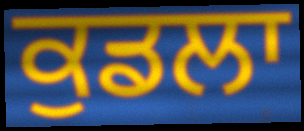
ਕੁਡਲਾ